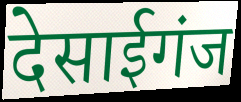
देसाईगंज